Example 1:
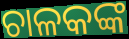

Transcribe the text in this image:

ଚାଳକଙ୍କ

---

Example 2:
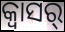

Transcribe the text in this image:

କ୍ୱାସର୍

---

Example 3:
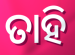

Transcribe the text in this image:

ତାହି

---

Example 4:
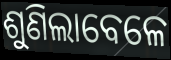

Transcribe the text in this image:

ଶୁଣିଲାବେଳେ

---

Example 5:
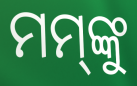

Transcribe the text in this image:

ମମ୍‌ଙ୍କୁ